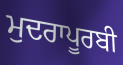
ਮੁਦਰਾਪੂਰਬੀ